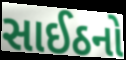
સાઈઠનો